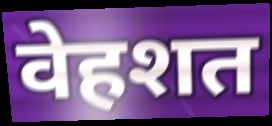
वेहशत